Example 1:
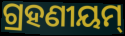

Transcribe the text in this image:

ଗ୍ରହଣୀୟମ୍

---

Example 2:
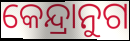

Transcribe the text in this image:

କେନ୍ଦ୍ରାନୁଗ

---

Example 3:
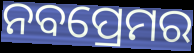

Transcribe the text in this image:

ନବପ୍ରେମର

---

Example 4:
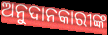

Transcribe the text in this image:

ଅନୁଦାନକାରୀଙ୍କ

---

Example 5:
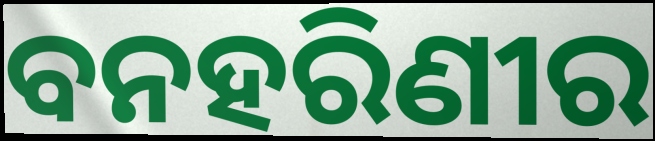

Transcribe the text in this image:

ବନହରିଣୀର